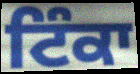
ਟਿੰਕਾ